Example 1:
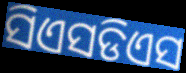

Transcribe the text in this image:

ସିଏସଡିଏସ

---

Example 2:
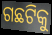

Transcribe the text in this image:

ଗଛଟିକୁ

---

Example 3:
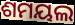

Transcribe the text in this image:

ଶମୟଲ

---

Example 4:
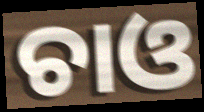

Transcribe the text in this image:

ଚାଓ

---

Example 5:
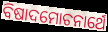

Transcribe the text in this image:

ବିଷାଦମୋଚନାର୍ଥେ